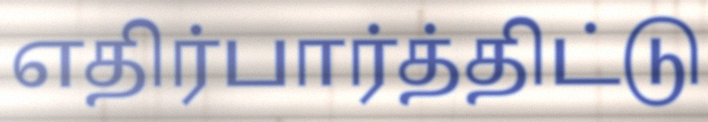
எதிர்பார்த்திட்டு